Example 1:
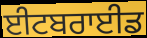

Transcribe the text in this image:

ਈਟਬਰਾਈਡ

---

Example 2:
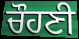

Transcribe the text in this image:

ਚੌਹਣੀ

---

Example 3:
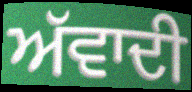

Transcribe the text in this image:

ਅੱਵਾਦੀ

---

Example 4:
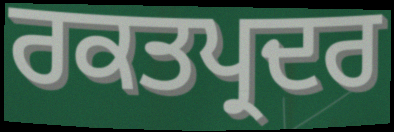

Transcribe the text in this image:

ਰਕਤਪ੍ਰਦਰ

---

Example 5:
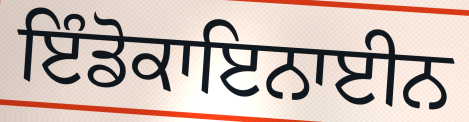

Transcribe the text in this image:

ਇੰਡੋਕਾਇਨਾਈਨ